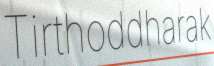
Tirthoddharak